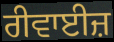
ਰੀਵਾਈਜ਼